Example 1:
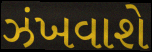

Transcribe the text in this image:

ઝંખવાશે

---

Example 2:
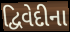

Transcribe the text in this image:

દ્વિવેદીના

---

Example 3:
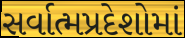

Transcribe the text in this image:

સર્વાત્મપ્રદેશોમાં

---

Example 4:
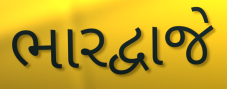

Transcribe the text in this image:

ભારદ્વાજે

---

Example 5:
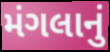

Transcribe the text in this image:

મંગલાનું